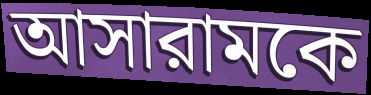
আসারামকে